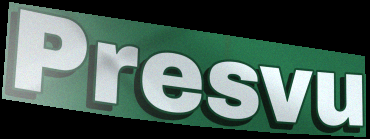
Presvu